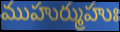
ముహుర్ముహుః